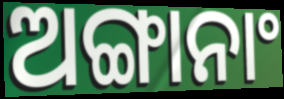
ଅଙ୍ଗାନାଂ